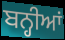
ਬਨ੍ਹੀਆਂ